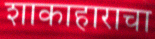
शाकाहाराचा